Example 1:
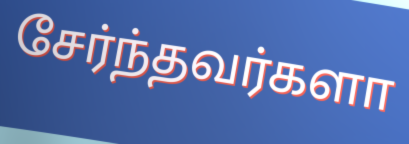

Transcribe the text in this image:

சேர்ந்தவர்களா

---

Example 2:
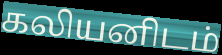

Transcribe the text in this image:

கலியனிடம்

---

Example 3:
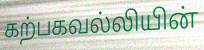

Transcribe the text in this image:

கற்பகவல்லியின்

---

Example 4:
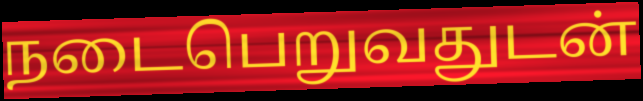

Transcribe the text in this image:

நடைபெறுவதுடன்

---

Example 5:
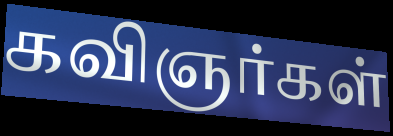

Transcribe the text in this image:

கவிஞர்கள்